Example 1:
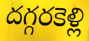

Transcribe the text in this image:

దగ్గరకెళ్లి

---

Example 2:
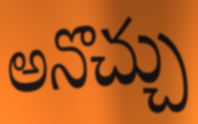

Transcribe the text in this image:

అనొచ్చు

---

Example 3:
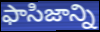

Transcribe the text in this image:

ఫాసిజాన్ని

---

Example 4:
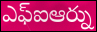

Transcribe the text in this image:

ఎఫ్ఐఆర్ను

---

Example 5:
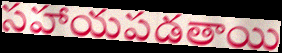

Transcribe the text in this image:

సహాయపడతాయి